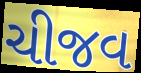
ચીજવ